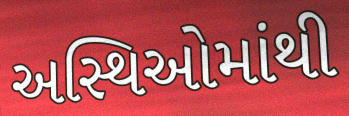
અસ્થિઓમાંથી